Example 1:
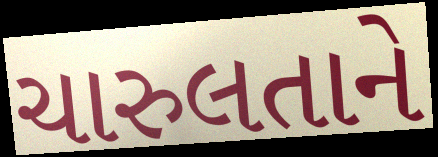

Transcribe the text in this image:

ચારુલતાને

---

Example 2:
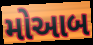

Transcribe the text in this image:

મોઆબ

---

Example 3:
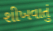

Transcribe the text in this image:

શીખવાતું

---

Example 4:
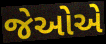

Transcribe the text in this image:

જેઓએ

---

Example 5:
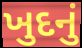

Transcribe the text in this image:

ખુદનું